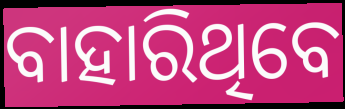
ବାହାରିଥିବେ